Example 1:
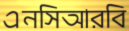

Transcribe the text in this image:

এনসিআরবি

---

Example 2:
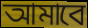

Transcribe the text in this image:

আমাবে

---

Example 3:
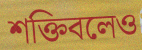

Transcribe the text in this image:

শক্তিবলেও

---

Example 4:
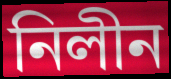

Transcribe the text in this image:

নিলীন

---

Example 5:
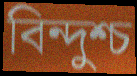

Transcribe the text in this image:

বিন্দুশ্চ